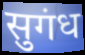
सुगंध